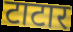
टाटार